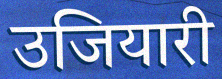
उजियारी